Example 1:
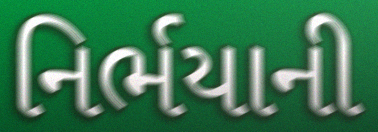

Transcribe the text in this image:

નિર્ભયાની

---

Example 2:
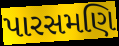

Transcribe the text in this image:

પારસમણિ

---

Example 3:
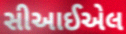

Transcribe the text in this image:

સીઆઈએલ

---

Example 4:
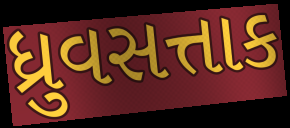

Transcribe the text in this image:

ધ્રુવસત્તાક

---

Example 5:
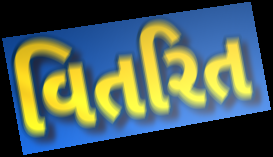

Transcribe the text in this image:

વિતરિત